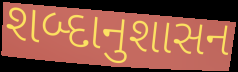
શબ્દાનુશાસન